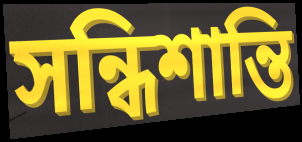
সন্ধিশান্তি